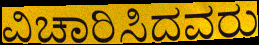
ವಿಚಾರಿಸಿದವರು